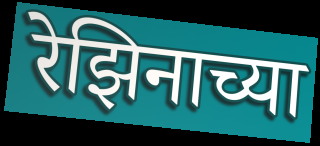
रेझिनाच्या